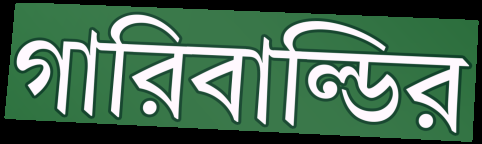
গারিবাল্ডির